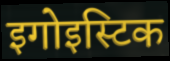
इगोइस्टिक